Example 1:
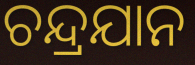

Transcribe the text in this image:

ଚନ୍ଦ୍ରଯାନ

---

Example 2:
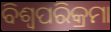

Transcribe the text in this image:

ବିଶ୍ୱପରିକ୍ରମା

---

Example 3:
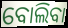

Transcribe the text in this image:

ବୋଲିବା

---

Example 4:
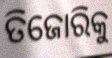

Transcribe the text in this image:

ତିଜୋରିକୁ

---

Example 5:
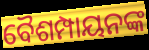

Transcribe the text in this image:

ବୈଶମ୍ପାୟନଙ୍କ